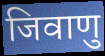
जिवाणु